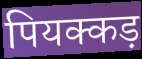
पियक्कड़